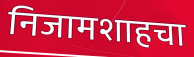
निजामशाहचा